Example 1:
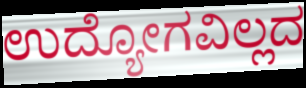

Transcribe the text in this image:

ಉದ್ಯೋಗವಿಲ್ಲದ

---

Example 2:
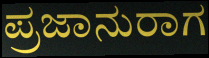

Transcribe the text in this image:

ಪ್ರಜಾನುರಾಗ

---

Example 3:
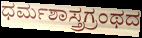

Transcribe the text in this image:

ಧರ್ಮಶಾಸ್ತ್ರಗ್ರಂಥದ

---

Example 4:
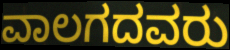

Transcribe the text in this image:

ವಾಲಗದವರು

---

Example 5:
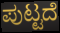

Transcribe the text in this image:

ಪುಟ್ಟದೆ